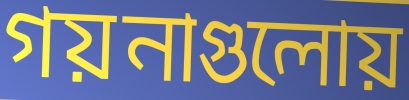
গয়নাগুলোয়